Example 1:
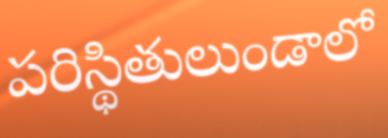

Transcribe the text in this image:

పరిస్థితులుండాలో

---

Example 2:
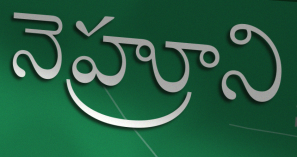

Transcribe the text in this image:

నెహ్రూని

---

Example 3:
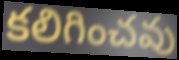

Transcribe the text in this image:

కలిగించవు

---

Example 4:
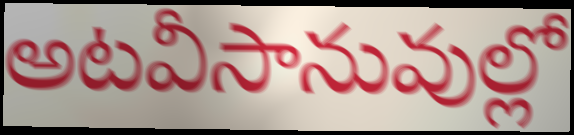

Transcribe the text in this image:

అటవీసానువుల్లో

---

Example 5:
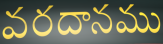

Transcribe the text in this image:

వరదానము